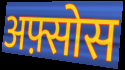
अफ़्सोस